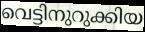
വെട്ടിനുറുക്കിയ